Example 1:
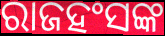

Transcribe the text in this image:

ରାଜହଂସଙ୍କ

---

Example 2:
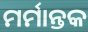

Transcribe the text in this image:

ମର୍ମାନ୍ତକ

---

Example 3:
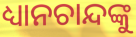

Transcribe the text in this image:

ଧ୍ୟାନଚାନ୍ଦଙ୍କୁ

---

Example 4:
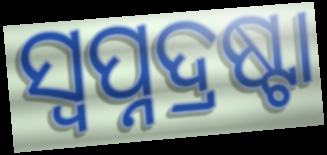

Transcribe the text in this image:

ସ୍ୱପ୍ନଦ୍ରଷ୍ଟା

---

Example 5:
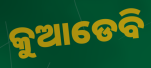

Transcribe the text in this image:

କୁଆଡେବି